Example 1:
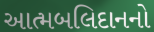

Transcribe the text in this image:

આત્મબલિદાનનો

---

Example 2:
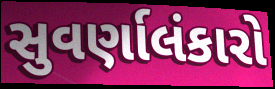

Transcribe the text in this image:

સુવર્ણાલંકારો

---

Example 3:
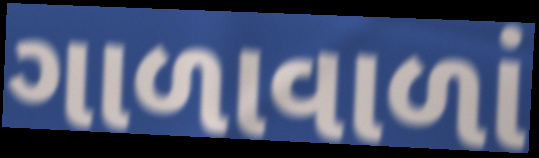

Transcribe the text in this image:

ગાળાવાળાં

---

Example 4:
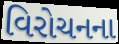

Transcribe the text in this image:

વિરોચનના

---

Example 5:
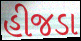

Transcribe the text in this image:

હીજડા